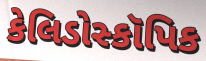
કેલિડોસ્કૉપિક